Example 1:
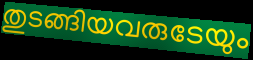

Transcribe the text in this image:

തുടങ്ങിയവരുടേയും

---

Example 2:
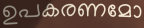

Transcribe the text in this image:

ഉപകരണമോ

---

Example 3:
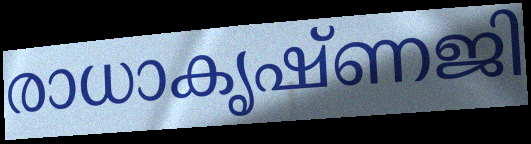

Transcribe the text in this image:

രാധാകൃഷ്ണജി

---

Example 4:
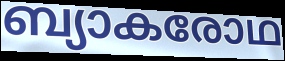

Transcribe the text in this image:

ബ്യാകരോഥ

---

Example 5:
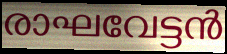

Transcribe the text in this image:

രാഘവേട്ടൻ